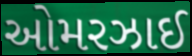
ઓમરઝાઈ